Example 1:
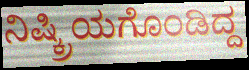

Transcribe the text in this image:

ನಿಷ್ಕ್ರಿಯಗೊಂಡಿದ್ದ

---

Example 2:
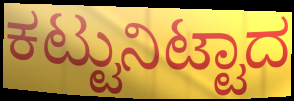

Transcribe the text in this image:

ಕಟ್ಟುನಿಟ್ಟಾದ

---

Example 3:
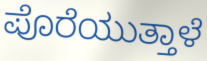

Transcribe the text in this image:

ಪೊರೆಯುತ್ತಾಳೆ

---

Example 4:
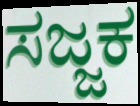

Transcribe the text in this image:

ಸಜ್ಜಕ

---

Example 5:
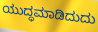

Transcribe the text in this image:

ಯುದ್ಧಮಾಡಿದುದು